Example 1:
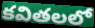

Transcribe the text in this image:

కవితలలో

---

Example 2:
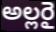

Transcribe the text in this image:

అల్లరై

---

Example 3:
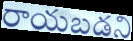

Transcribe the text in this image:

రాయబడని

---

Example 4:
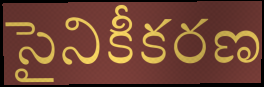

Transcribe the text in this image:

సైనికీకరణ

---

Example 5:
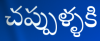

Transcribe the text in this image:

చప్పుళ్ళకి